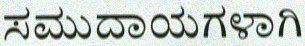
ಸಮುದಾಯಗಳಾಗಿ